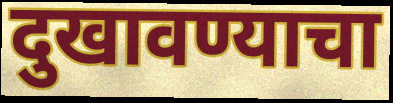
दुखावण्याचा